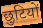
छुटियों